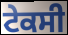
ਟੇਕਸੀ